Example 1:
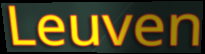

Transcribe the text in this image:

Leuven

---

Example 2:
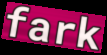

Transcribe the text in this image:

fark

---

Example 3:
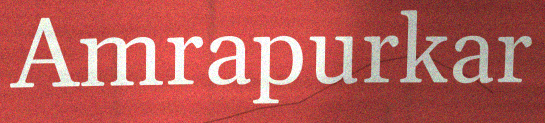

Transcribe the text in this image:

Amrapurkar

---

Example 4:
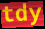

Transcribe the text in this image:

tdy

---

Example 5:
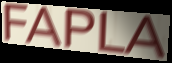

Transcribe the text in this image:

FAPLA